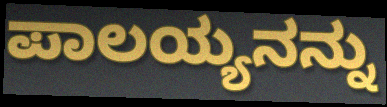
ಪಾಲಯ್ಯನನ್ನು